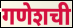
गणेशची